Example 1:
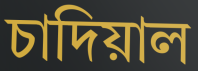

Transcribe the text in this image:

চাদিয়াল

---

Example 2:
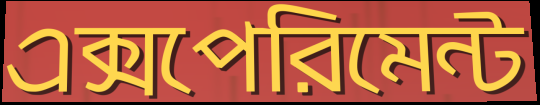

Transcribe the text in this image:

এক্সপেরিমেন্ট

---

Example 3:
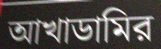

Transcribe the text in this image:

আখাডামির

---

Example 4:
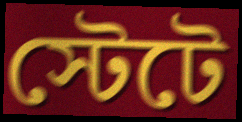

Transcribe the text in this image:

স্টেটে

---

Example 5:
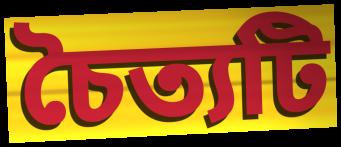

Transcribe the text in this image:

চৈত্যটি